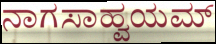
ನಾಗಸಾಹ್ವಯಮ್